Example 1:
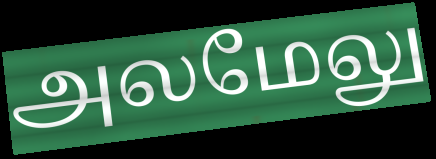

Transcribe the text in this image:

அலமேலு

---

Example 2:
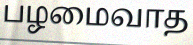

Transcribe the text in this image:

பழமைவாத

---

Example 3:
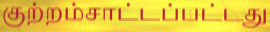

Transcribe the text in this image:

குற்றம்சாட்டப்பட்டது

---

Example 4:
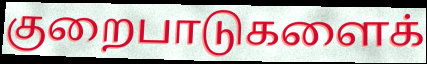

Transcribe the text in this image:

குறைபாடுகளைக்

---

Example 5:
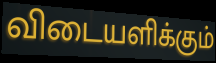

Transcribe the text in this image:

விடையளிக்கும்